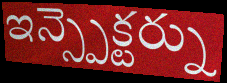
ఇన్స్పెక్టర్ను